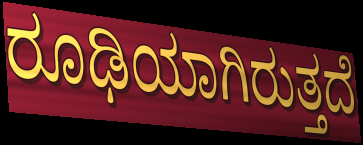
ರೂಢಿಯಾಗಿರುತ್ತದೆ